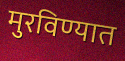
मुरविण्यात